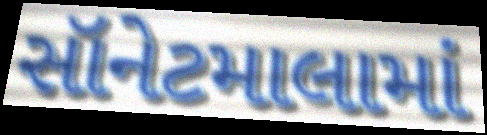
સૉનેટમાલામાં